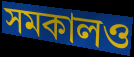
সমকালও